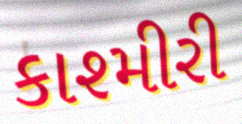
કાશ્મીરી